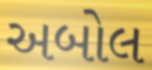
અબોલ